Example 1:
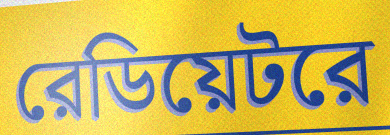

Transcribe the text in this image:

রেডিয়েটরে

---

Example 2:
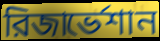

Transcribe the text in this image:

রিজার্ভেশান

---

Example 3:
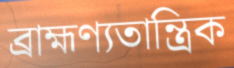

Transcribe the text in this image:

ব্রাহ্মণ্যতান্ত্রিক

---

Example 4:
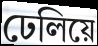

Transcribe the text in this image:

ঢেলিয়ে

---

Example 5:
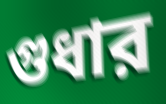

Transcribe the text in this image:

গুধার